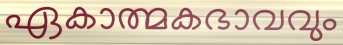
ഏകാത്മകഭാവവും